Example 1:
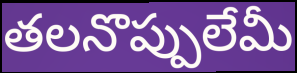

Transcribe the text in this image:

తలనొప్పులేమీ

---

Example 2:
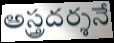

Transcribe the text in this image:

అస్త్రదర్శనే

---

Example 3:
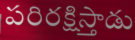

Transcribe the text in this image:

పరిరక్షిస్తాడు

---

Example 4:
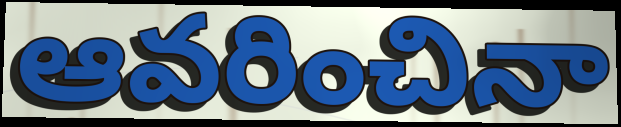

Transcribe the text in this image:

ఆవరించినా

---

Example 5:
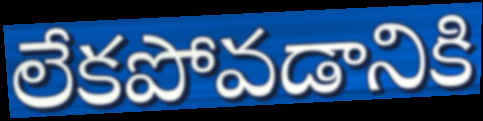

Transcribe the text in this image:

లేకపోవడానికి